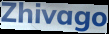
Zhivago